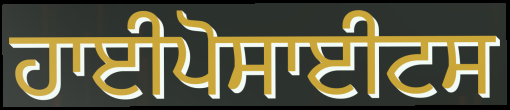
ਹਾਈਪੋਸਾਈਟਸ